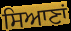
ਸਿਆਣਾਂ